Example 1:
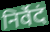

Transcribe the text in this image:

निर्वेदं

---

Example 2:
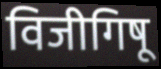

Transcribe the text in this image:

विजीगिषू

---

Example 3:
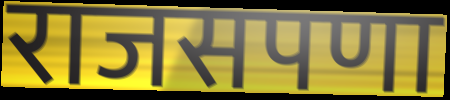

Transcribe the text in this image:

राजसपणा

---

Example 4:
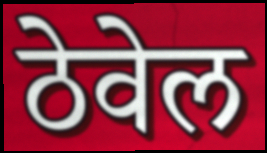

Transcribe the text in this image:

ठेवेल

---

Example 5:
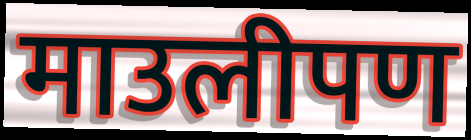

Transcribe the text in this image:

माउलीपण